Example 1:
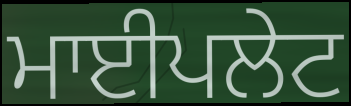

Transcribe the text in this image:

ਮਾਈਪਲੇਟ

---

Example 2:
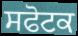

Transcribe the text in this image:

ਸਫੋਟਕ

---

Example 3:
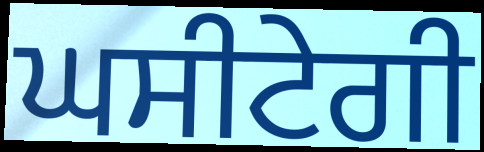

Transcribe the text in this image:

ਘਸੀਟੇਗੀ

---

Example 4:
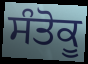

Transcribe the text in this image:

ਸੰਤੋਕੂ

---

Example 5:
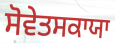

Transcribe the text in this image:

ਸੋਵੇਤਸਕਾਯਾ